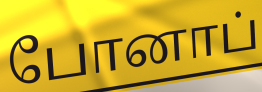
போனாப்